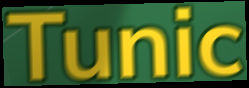
Tunic